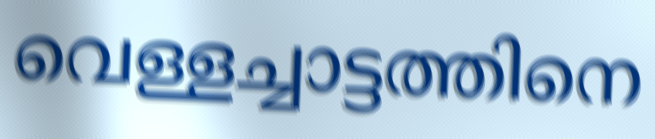
വെള്ളച്ചാട്ടത്തിനെ